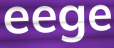
eege